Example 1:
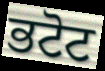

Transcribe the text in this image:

ਭਟੋਟ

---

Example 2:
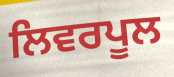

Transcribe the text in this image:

ਲਿਵਰਪੂਲ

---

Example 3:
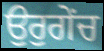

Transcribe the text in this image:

ਉਰੁਗੇਂਚ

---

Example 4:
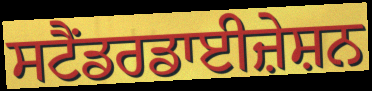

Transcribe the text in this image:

ਸਟੈਂਡਰਡਾਈਜ਼ੇਸ਼ਨ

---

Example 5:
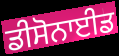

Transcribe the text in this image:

ਡੀਸੋਨਾਈਡ